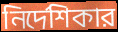
নির্দেশিকার